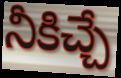
నీకిచ్చే